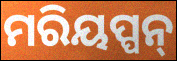
ମରିୟପ୍ପନ୍